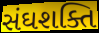
સંઘશક્તિ